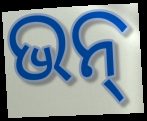
ଭନ୍